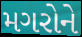
મગરોને